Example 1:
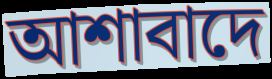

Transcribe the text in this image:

আশাবাদে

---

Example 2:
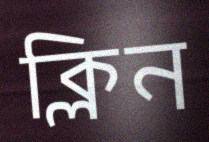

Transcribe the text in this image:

ক্লিন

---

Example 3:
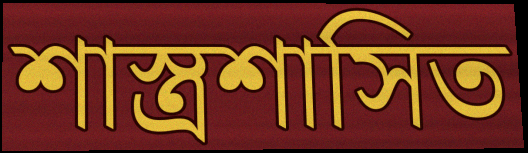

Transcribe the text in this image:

শাস্ত্রশাসিত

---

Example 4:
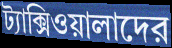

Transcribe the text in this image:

ট্যাক্সিওয়ালাদের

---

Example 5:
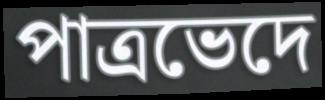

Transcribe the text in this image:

পাত্রভেদে